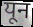
यून